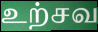
உற்சவ